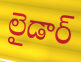
లైడార్